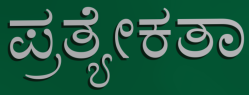
ಪ್ರತ್ಯೇಕತಾ